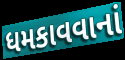
ધમકાવવાનાં